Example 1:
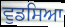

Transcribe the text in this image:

ਵੁਡਸਿਆ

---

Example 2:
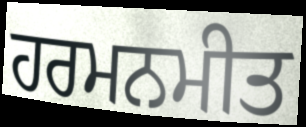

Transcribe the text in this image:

ਹਰਮਨਮੀਤ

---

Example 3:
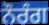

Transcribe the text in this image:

ਨੌਰੰਗ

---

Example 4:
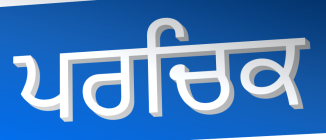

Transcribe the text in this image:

ਪਰਚਿਕ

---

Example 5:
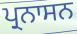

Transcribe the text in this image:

ਪ੍ਰਨਾਸਨ